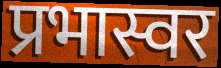
प्रभास्वर